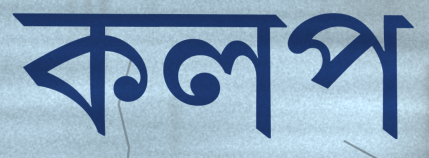
কলপ